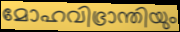
മോഹവിഭ്രാന്തിയും